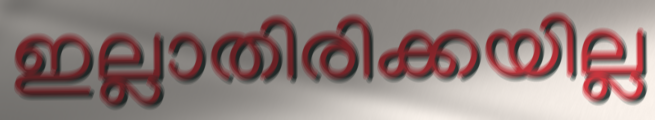
ഇല്ലാതിരിക്കയില്ല